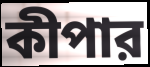
কীপার